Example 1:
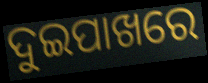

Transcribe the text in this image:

ଦୁଇପାଖରେ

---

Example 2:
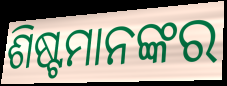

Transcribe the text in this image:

ଶିଷ୍ଟମାନଙ୍କର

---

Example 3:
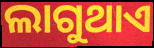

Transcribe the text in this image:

ଲାଗୁଥାଏ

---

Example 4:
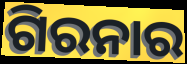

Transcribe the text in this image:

ଗିରନାର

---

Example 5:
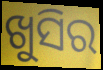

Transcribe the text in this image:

ଖୁସିର